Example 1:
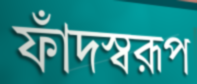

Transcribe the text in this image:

ফাঁদস্বরূপ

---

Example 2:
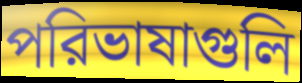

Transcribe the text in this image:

পরিভাষাগুলি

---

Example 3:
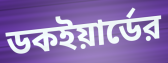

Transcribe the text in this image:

ডকইয়ার্ডের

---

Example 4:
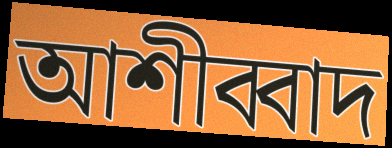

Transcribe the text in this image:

আশীব্বাদ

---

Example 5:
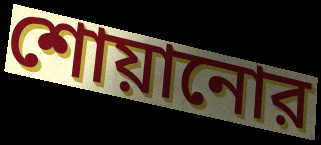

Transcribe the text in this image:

শোয়ানোর